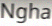
Ngha